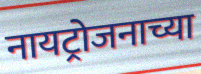
नायट्रोजनाच्या